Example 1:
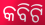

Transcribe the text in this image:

କବିଟି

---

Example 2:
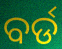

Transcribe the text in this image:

ବର୍ଡ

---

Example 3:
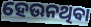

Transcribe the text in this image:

ହେଉନଥିଵା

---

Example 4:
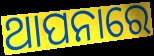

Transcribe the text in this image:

ଥାପନାରେ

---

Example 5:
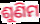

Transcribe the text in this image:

ଶୁଣିମ